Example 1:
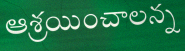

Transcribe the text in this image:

ఆశ్రయించాలన్న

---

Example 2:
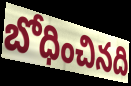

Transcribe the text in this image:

బోధించినది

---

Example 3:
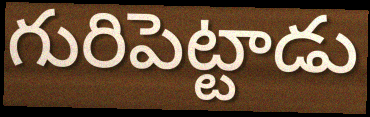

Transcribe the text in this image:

గురిపెట్టాడు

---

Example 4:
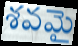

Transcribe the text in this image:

శవమై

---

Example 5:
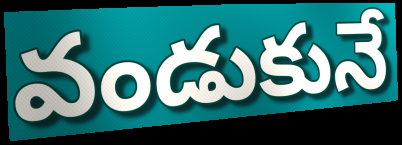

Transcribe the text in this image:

వండుకునే